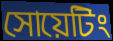
সোয়েটিং